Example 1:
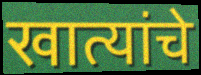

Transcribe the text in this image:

खात्यांचे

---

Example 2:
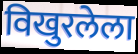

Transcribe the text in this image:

विखुरलेला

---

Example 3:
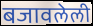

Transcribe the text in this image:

बजावलेली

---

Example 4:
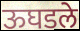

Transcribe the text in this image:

ऊघडले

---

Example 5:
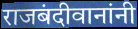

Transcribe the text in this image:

राजबंदीवानांनी